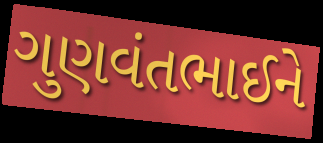
ગુણવંતભાઈને